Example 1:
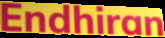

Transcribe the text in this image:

Endhiran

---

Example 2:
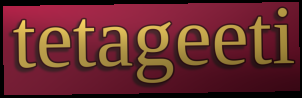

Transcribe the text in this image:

tetageeti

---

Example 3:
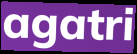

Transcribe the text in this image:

agatri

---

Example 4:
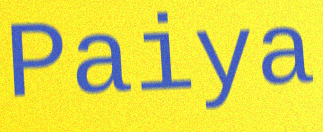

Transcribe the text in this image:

Paiya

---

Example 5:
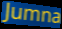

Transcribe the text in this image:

Jumna